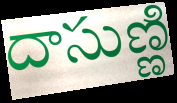
దాసుణ్ణి